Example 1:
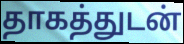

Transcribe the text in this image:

தாகத்துடன்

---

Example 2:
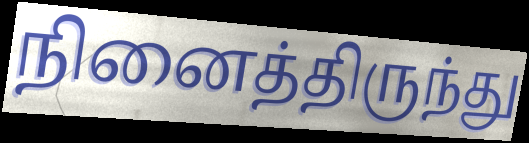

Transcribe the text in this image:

நினைத்திருந்து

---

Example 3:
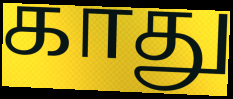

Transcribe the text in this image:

காது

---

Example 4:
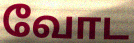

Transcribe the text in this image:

வோட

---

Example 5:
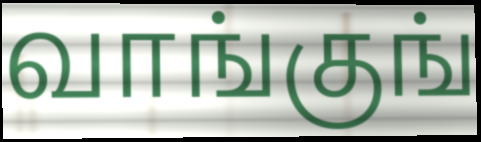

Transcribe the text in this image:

வாங்குங்